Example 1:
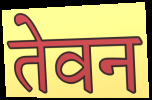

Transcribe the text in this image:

तेवन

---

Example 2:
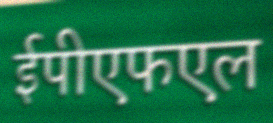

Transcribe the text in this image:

ईपीएफएल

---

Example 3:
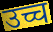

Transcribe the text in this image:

उच्‍च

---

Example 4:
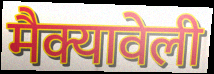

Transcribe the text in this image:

मैक्यावेली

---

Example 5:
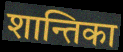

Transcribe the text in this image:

शान्तिका